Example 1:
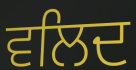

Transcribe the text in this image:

ਵਲਿਦ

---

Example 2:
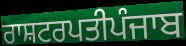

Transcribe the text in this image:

ਰਾਸ਼ਟਰਪਤੀਪੰਜਾਬ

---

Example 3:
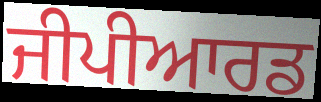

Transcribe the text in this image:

ਜੀਪੀਆਰਡ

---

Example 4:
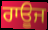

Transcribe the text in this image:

ਰਾਊਜ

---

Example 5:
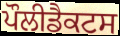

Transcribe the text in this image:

ਪੌਲੀਡੈਕਟਸ